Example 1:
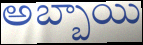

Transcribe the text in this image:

అబ్బాయి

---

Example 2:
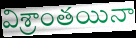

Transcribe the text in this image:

విశ్రాంతయినా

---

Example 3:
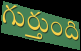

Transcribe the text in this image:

గుర్తుంది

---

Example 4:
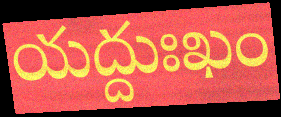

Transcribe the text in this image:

యద్దుఃఖం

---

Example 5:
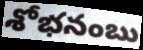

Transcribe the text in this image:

శోభనంబు